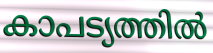
കാപട്യത്തിൽ